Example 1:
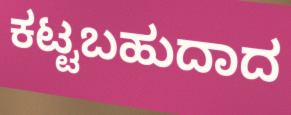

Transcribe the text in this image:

ಕಟ್ಟಬಹುದಾದ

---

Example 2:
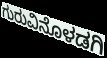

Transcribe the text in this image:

ಗುರುವಿನೊಳಡಗಿ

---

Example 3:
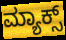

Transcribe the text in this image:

ಮ್ಯಾಕ್ಸ್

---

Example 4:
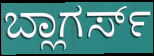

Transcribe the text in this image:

ಬ್ಲಾಗರ್ಸ್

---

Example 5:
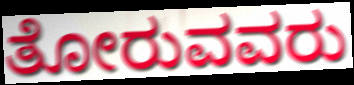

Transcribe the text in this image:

ತೋರುವವರು